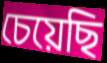
চেয়েছি